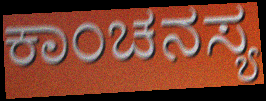
ಕಾಂಚನಸ್ಯ